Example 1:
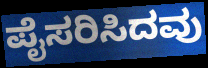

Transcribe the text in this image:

ಪೈಸರಿಸಿದವು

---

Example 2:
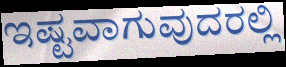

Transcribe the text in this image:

ಇಷ್ಟವಾಗುವುದರಲ್ಲಿ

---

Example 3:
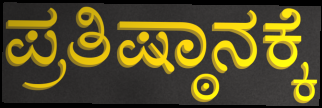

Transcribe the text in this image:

ಪ್ರತಿಷ್ಠಾನಕ್ಕೆ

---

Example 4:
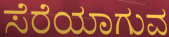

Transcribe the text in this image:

ಸೆರೆಯಾಗುವ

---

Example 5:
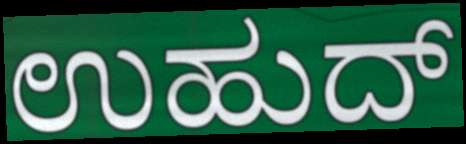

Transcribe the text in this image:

ಉಹುದ್